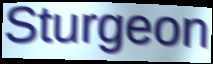
Sturgeon